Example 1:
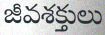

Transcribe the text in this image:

జీవశక్తులు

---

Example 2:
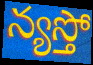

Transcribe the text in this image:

న్యస్తో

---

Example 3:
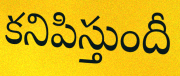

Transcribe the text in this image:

కనిపిస్తుందీ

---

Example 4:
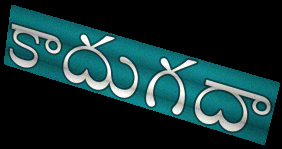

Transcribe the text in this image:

కాదుగదా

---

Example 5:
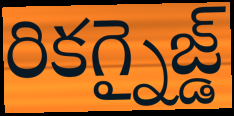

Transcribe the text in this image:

రికగ్నైజ్డ్